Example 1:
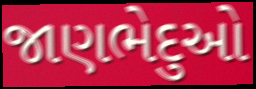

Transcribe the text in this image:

જાણભેદુઓ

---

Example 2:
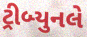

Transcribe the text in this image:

ટ્રીબ્યુનલે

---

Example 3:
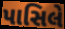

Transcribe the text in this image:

પાસિલે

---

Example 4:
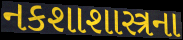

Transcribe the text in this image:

નકશાશાસ્ત્રના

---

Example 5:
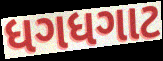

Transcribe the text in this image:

ધગધગાટ